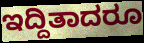
ಇದ್ದಿತಾದರೂ